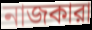
নাজকারা